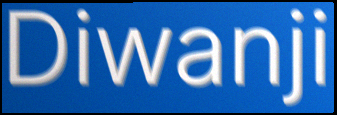
Diwanji